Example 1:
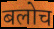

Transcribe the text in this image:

बलोच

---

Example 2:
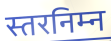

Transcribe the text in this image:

स्तरनिम्न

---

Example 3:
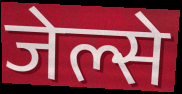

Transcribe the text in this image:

जेल्से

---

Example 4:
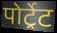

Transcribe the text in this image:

पोर्ट्रेट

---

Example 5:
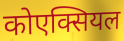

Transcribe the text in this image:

कोएक्सियल